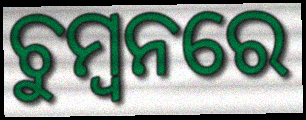
ଚୁମ୍ବନରେ